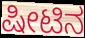
ಷೀಟಿನ